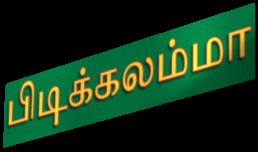
பிடிக்கலம்மா